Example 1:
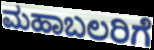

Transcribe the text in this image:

ಮಹಾಬಲರಿಗೆ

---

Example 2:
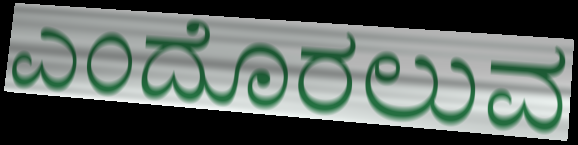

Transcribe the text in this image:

ಎಂದೊರಲುವ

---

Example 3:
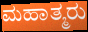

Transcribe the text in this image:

ಮಹಾತ್ಮರು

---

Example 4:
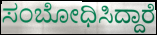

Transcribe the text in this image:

ಸಂಬೋಧಿಸಿದ್ದಾರೆ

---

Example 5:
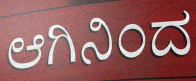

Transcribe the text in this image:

ಆಗಿನಿಂದ